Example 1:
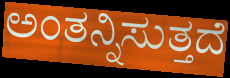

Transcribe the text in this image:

ಅಂತನ್ನಿಸುತ್ತದೆ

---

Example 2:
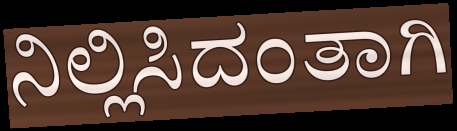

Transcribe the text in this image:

ನಿಲ್ಲಿಸಿದಂತಾಗಿ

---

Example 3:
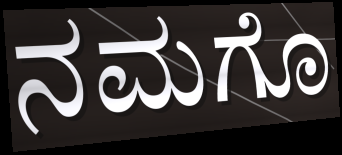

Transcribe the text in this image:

ನಮಗೊ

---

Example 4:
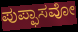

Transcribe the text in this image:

ಪುಪ್ಫಾಸವೋ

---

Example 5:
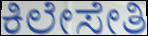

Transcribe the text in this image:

ಕಿಲೇಸೇತಿ